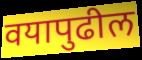
वयापुढील